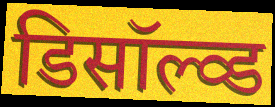
डिसॉल्व्ड